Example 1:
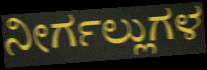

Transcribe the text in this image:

ನೀರ್ಗಲ್ಲುಗಳ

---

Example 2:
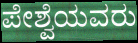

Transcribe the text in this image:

ಪೇಶ್ವೆಯವರು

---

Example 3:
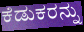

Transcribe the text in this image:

ಕೆಡುಕರನ್ನು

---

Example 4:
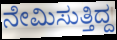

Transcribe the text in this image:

ನೇಮಿಸುತ್ತಿದ್ದ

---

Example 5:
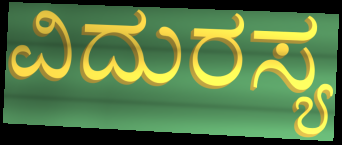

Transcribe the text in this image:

ವಿದುರಸ್ಯ